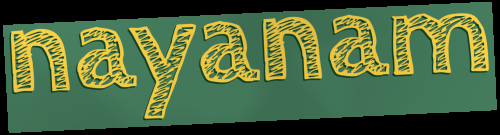
nayanam